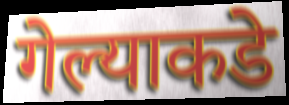
गेल्याकडे